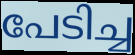
പേടിച്ച